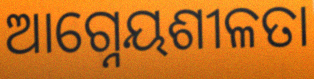
ଆଗ୍ନେୟଶୀଳତା